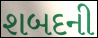
શબદની